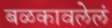
बळकावलेलं